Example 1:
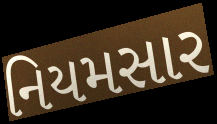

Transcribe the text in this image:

નિયમસાર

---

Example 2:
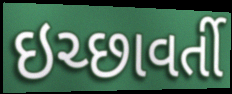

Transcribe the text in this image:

ઇચ્છાવર્તી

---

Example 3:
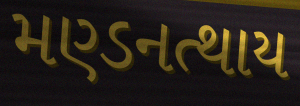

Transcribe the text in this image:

મણ્ડનત્થાય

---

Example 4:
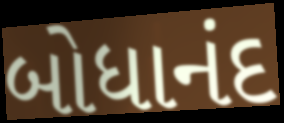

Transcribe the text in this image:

બોધાનંદ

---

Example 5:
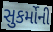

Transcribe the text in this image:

સુકર્મોની